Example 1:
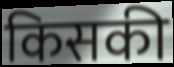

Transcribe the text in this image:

किसकी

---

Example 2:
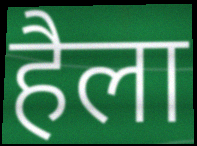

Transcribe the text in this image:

हैला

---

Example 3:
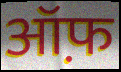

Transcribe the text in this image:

ऑ़फ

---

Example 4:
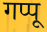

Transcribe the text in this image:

गप्पू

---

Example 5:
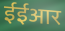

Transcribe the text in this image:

ईईआर